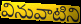
వినువాటిని